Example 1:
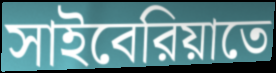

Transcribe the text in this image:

সাইবেরিয়াতে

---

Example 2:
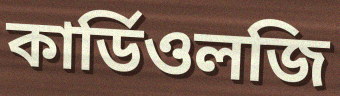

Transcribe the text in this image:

কার্ডিওলজি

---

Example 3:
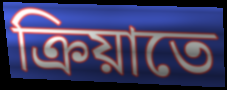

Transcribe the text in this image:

ক্রিয়াতে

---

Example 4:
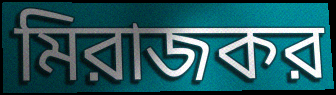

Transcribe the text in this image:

মিরাজকর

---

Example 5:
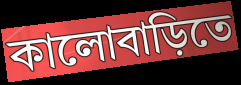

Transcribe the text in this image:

কালোবাড়িতে